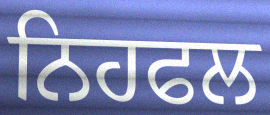
ਨਿਹਫਲ